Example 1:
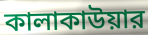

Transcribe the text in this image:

কালাকাউয়ার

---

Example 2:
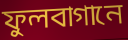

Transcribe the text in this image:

ফুলবাগানে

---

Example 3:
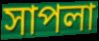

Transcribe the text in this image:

সাপলা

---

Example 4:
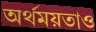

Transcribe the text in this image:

অর্থময়তাও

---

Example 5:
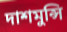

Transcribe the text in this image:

দাশমুন্সি